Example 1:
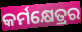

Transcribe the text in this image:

କର୍ମକ୍ଷେତ୍ରର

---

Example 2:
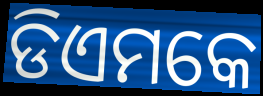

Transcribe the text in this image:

ଡିଏମକେ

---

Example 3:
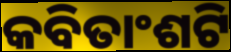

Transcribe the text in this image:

କବିତାଂଶଟି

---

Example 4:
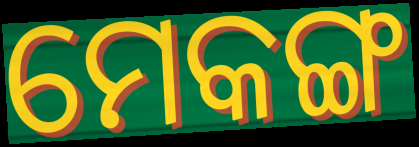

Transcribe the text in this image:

ମେକଙ୍ଗ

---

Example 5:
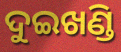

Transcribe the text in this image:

ଦୁଇଖଣ୍ଡି